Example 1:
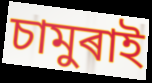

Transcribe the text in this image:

চামুৰাই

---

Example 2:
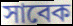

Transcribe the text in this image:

সাবেক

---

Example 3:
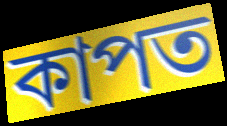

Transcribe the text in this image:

কাপত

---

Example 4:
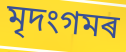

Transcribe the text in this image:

মৃদংগমৰ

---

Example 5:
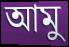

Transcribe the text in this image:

আমু